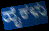
ಹೈಕಳು